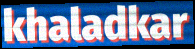
khaladkar